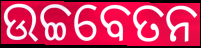
ଉଚ୍ଚବେତନ